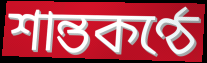
শান্তকণ্ঠে